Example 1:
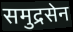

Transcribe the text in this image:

समुद्रसेन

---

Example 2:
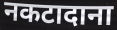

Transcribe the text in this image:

नकटादाना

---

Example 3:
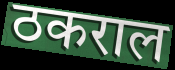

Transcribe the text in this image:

ठकराल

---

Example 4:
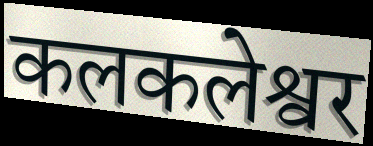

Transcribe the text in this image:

कलकलेश्वर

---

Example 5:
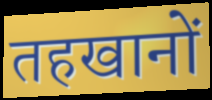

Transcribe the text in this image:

तहखानों